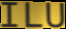
ILU